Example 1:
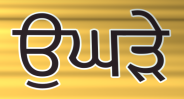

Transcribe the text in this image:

ਉਘੜੇ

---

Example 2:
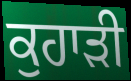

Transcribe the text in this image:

ਕੁਹਾੜੀ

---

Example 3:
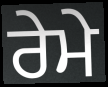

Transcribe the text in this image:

ਰੇਮੇ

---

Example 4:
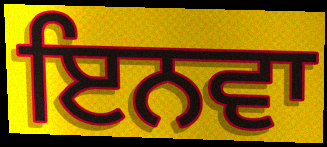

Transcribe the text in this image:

ਇਨਵਾ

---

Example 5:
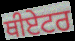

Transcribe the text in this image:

ਥੀਏਟਰ